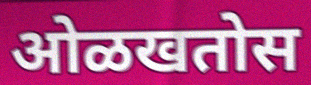
ओळखतोस